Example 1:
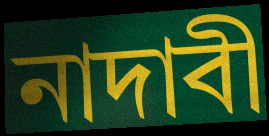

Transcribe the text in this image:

নাদাবী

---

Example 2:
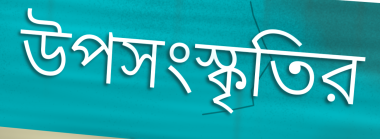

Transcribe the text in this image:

উপসংস্কৃতির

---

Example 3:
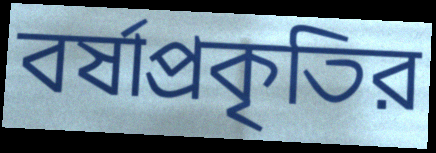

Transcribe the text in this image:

বর্ষাপ্রকৃতির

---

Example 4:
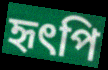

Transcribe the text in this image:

হৃৎপি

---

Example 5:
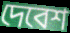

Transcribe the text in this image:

দেবেশ